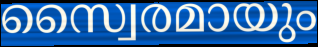
സ്വൈരമായും